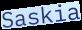
Saskia